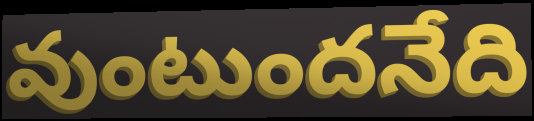
వుంటుందనేది